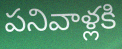
పనివాళ్లకి